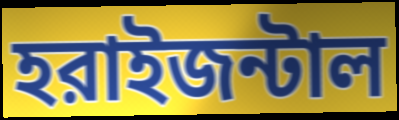
হরাইজন্টাল